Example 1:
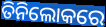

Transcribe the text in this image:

ତିନିଲୋକରେ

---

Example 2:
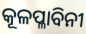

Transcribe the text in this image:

କୂଳପ୍ଳାବିନୀ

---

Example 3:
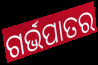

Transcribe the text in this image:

ଗର୍ଭପାତର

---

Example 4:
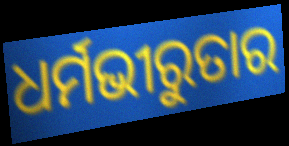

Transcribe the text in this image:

ଧର୍ମଭୀରୁତାର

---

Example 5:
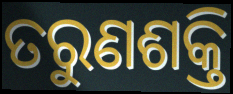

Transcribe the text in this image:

ତରୁଣଶକ୍ତି